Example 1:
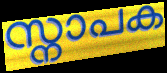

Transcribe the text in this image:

സ്നാപക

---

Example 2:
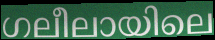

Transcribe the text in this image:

ഗലീലായിലെ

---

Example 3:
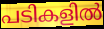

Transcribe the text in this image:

പടികളിൽ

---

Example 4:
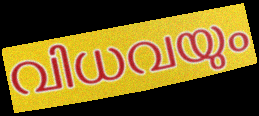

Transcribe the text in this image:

വിധവയും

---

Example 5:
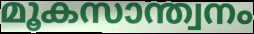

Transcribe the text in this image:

മൂകസാന്ത്വനം